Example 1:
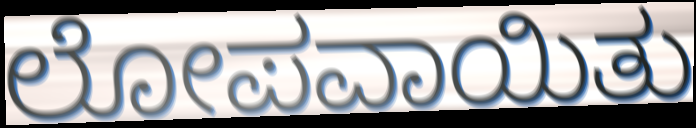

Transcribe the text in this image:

ಲೋಪವಾಯಿತು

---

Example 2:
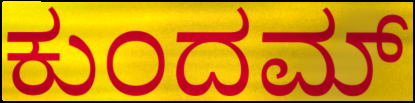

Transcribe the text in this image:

ಕುಂದಮ್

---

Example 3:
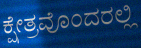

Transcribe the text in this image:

ಕ್ಷೇತ್ರವೊಂದರಲ್ಲಿ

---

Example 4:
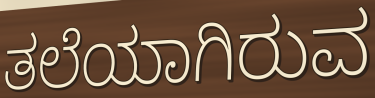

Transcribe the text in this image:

ತಲೆಯಾಗಿರುವ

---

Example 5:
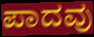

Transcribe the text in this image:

ಪಾದವು